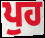
ਪੁਹ